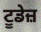
ਟੂਡੇਜ਼